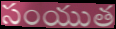
సంయుత